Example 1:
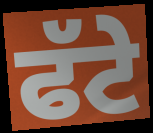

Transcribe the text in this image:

ਫੱਟੇ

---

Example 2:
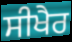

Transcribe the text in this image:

ਸੀਖੈਰ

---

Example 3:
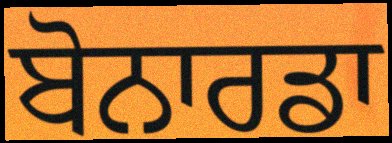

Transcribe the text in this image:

ਬੋਨਾਰਡਾ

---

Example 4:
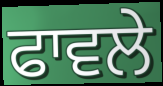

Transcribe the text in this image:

ਫਾਵਲੇ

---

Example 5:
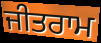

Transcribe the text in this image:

ਜੀਤਰਾਮ